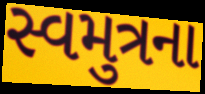
સ્વમુત્રના